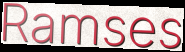
Ramses